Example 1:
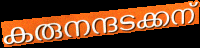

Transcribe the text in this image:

കരുനന്ദടക്കന്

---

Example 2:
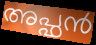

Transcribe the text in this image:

അപ്ഫൻ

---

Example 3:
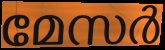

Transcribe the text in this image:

മേസർ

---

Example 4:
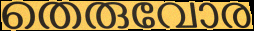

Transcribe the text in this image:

തെരുവോര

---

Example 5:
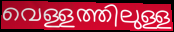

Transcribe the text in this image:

വെള്ളത്തിലുള്ള